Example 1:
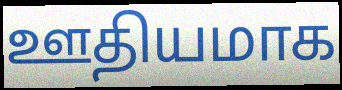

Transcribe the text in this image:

ஊதியமாக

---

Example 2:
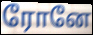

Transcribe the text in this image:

ரோனே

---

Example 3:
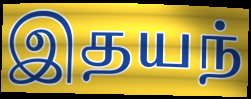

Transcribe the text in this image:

இதயந்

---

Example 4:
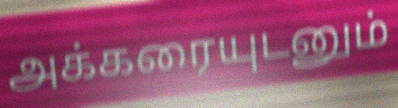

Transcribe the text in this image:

அக்கரையுடனும்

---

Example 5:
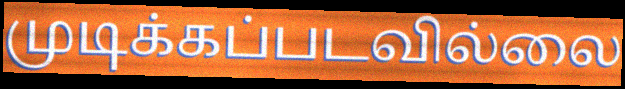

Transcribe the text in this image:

முடிக்கப்படவில்லை